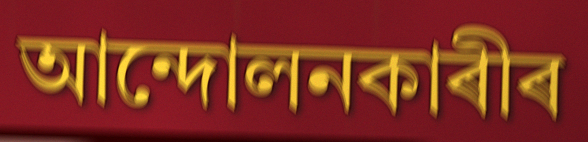
আন্দোলনকাৰীৰ